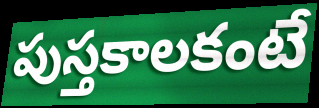
పుస్తకాలకంటే